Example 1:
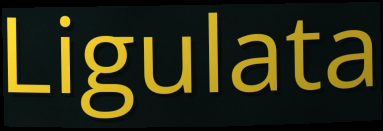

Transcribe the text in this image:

Ligulata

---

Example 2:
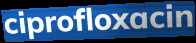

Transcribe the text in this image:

ciprofloxacin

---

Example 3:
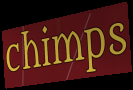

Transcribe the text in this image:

chimps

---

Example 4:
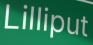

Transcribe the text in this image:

Lilliput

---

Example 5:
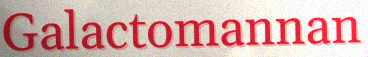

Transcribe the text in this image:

Galactomannan